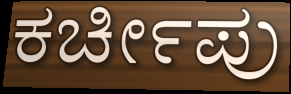
ಕರ್ಚೀಪು